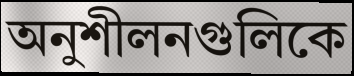
অনুশীলনগুলিকে